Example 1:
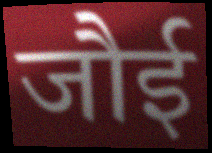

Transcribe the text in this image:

जौई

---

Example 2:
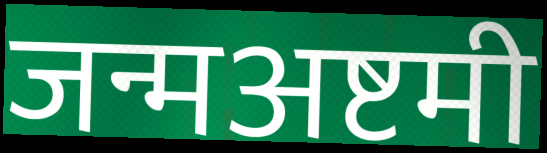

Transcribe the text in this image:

जन्मअष्टमी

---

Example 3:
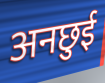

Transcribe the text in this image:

अनछुई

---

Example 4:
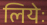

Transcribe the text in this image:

लियेः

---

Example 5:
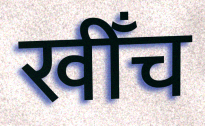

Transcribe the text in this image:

खीँच